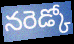
నరెడ్కో